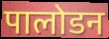
पालोडन